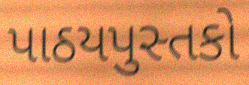
પાઠયપુસ્તકો